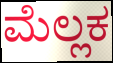
ಮೆಲ್ಲಕ